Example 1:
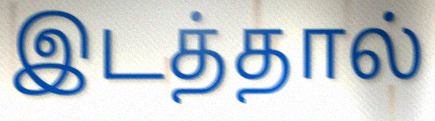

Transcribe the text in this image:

இடத்தால்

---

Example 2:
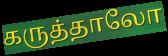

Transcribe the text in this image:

கருத்தாலோ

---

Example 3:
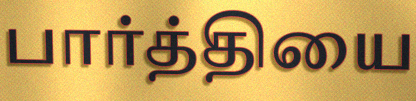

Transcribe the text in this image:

பார்த்தியை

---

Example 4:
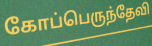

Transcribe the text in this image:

கோப்பெருந்தேவி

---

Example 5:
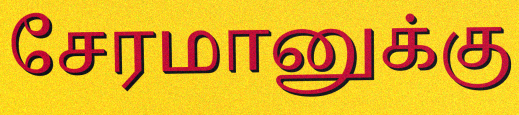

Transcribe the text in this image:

சேரமானுக்கு